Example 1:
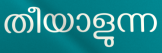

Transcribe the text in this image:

തീയാളുന്ന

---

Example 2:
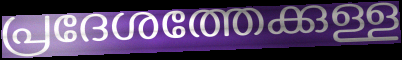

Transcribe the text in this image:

പ്രദേശത്തേക്കുള്ള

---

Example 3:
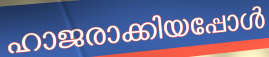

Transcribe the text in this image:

ഹാജരാക്കിയപ്പോൾ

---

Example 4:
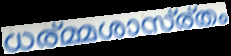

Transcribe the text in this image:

ധര്മ്മശാസ്ര്തം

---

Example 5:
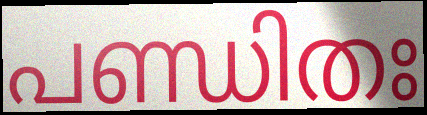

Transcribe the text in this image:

പണ്ഡിതഃ